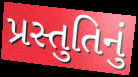
પ્રસ્તુતિનું